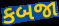
કબજા